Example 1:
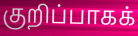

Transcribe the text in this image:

குறிப்பாகக்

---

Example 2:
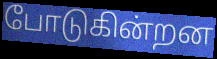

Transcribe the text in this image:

போடுகின்றன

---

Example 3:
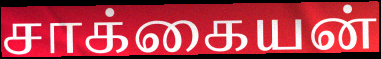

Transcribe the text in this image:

சாக்கையன்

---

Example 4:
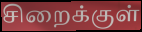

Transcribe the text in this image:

சிறைக்குள்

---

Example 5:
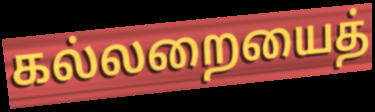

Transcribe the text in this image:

கல்லறையைத்